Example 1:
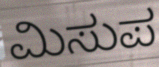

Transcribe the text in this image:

ಮಿಸುಪ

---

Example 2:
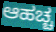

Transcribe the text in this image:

ಆಹಚ್ಚ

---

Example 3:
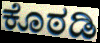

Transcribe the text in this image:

ಕೊಠಡಿ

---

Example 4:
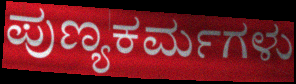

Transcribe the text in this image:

ಪುಣ್ಯಕರ್ಮಗಳು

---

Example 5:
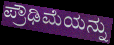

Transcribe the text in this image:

ಪ್ರೌಢಿಮೆಯನ್ನು